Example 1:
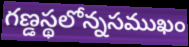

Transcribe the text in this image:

గణ్డస్థలోన్నసముఖం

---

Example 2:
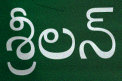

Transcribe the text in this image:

శ్రీలన్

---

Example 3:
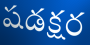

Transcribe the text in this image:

షడక్షర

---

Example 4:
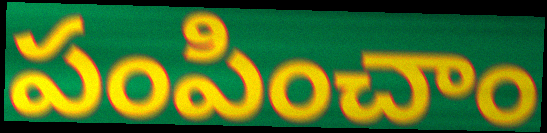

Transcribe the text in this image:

పంపించాం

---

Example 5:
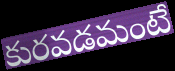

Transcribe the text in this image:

కురవడమంటే